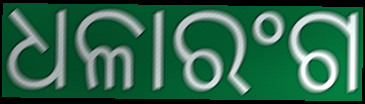
ଧଳାରଂଗ